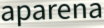
aparena